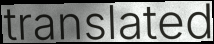
translated